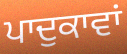
ਪਾਦੁਕਾਵਾਂ